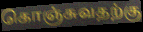
கொஞ்சுவதற்கு